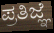
ಪ್ರತಿಜ್ಞೆ